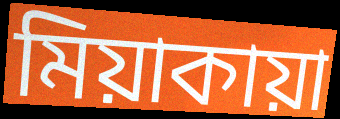
মিয়াকায়া